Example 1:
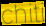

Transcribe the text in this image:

chiti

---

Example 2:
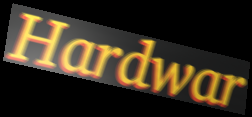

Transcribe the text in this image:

Hardwar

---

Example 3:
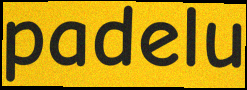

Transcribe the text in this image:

padelu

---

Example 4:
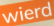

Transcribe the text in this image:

wierd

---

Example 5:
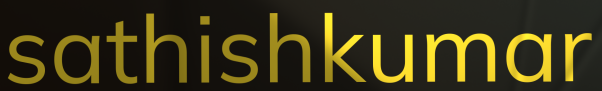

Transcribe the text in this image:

sathishkumar